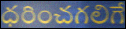
ధరించగలిగే